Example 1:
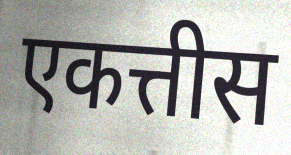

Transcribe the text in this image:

एकत्तीस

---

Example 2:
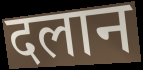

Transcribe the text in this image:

दलान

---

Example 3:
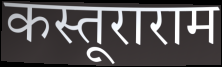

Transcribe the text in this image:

कस्तूराराम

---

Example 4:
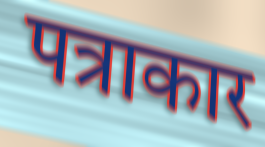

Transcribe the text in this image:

पत्राकार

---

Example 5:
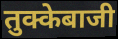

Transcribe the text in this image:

तुक्केबाजी